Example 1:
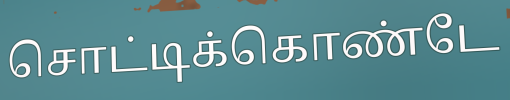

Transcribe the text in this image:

சொட்டிக்கொண்டே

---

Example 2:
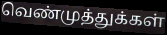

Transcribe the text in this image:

வெண்முத்துக்கள்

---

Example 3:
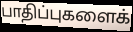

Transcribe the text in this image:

பாதிப்புகளைக்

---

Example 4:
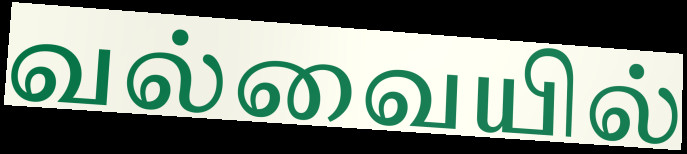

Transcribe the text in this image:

வல்வையில்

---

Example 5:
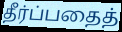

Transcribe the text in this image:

தீர்ப்பதைத்